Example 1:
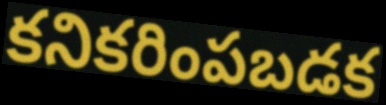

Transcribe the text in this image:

కనికరింపబడక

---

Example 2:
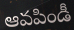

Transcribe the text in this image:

ఆవపిండీ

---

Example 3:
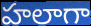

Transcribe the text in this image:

హలాగా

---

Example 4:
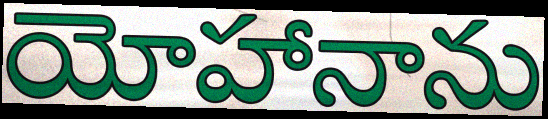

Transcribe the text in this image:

యోహానాను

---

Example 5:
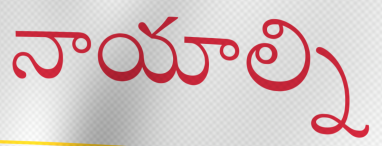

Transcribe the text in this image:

నాయాల్ని